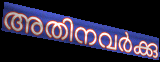
അതിനവർക്കു